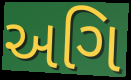
અગિ